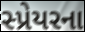
સ્પ્રેયરના